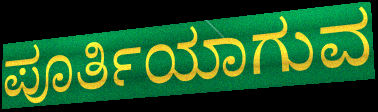
ಪೂರ್ತಿಯಾಗುವ